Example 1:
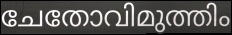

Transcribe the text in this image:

ചേതോവിമുത്തിം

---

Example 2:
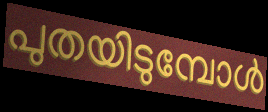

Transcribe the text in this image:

പുതയിടുമ്പോൾ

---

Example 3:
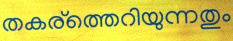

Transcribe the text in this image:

തകര്ത്തെറിയുന്നതും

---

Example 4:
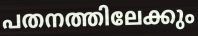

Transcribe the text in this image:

പതനത്തിലേക്കും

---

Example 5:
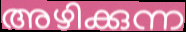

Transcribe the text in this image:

അഴിക്കുന്ന